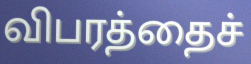
விபரத்தைச்